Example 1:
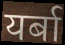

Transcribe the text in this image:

यर्बा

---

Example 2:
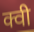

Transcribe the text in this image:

क्वी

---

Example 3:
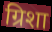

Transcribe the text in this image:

ग्रिशा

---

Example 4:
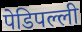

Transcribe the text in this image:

पेडिपल्ली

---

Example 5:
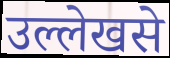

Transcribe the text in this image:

उल्लेखसे